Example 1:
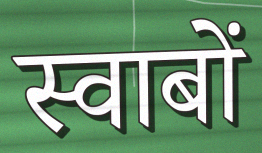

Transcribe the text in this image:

स्वाबों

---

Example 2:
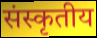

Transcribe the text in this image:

संस्कृतीय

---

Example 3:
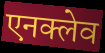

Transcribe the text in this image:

एनक्‍लेव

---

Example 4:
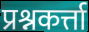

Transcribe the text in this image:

प्रश्नकर्त्ता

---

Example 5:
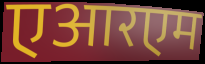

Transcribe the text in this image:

एआरएम